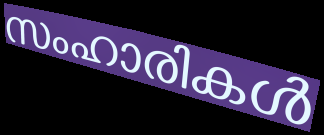
സംഹാരികൾ